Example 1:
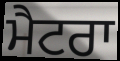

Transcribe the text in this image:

ਮੈਟਰਾ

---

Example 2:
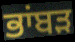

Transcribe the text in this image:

ਭਾਂਬੜ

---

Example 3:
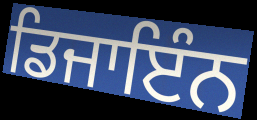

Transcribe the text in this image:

ਡਿਜਾਇੰਨ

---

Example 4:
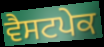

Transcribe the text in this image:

ਵੈਸਟਪੇਕ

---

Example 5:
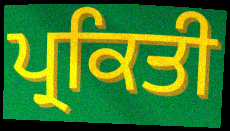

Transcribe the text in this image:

ਪ੍ਰਕਿਤੀ